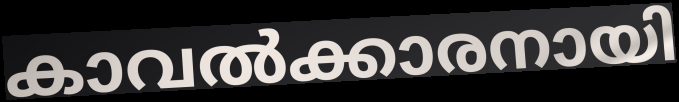
കാവൽക്കാരനായി